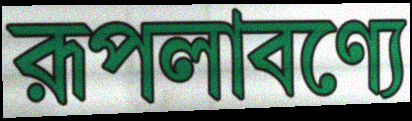
রূপলাবণ্যে